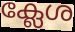
ക്ലേശ